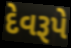
દેવરૂપે